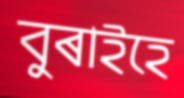
বুৰাইহে